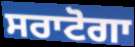
ਸਰਾਟੋਗਾ